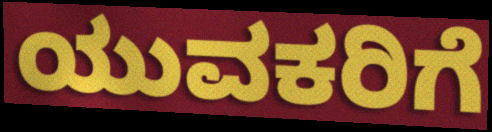
ಯುವಕರಿಗೆ